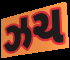
ઝચ